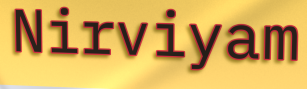
Nirviyam